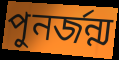
পুনৰ্জন্ম